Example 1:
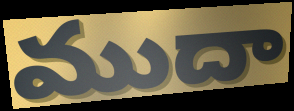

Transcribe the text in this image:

ముదా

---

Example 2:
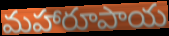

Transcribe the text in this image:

మహారూపాయ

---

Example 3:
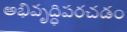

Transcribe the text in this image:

అభివృద్ధిపరచడం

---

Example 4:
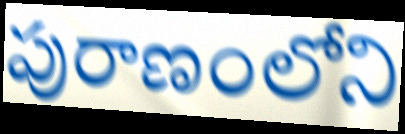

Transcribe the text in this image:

పురాణంలోని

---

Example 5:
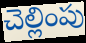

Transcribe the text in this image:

చెల్లింపు